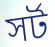
সর্ট